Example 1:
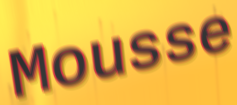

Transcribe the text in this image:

Mousse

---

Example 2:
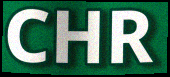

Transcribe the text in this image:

CHR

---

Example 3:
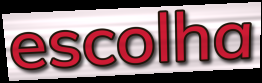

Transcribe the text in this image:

escolha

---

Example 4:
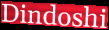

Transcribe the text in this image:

Dindoshi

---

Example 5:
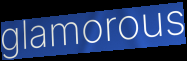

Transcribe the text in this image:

glamorous